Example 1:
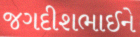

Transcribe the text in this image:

જગદીશભાઈને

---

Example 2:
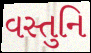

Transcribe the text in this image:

વસ્તુનિ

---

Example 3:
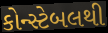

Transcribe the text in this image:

કોન્સ્ટેબલથી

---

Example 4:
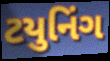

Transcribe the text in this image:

ટયુનિંગ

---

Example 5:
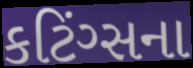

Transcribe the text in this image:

કટિંગ્સના